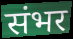
संभर